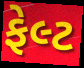
ફેલ્ટ